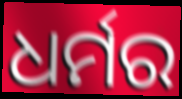
ଧର୍ମର